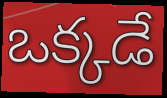
ఒక్కడే